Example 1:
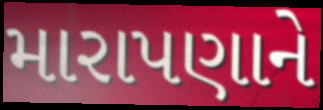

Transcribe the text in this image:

મારાપણાને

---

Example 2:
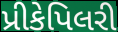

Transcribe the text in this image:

પ્રીકેપિલરી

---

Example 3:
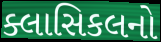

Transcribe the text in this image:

ક્લાસિકલનો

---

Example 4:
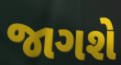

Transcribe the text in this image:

જાગશે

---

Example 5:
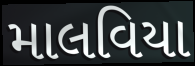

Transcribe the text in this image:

માલવિયા